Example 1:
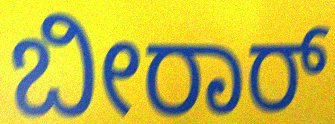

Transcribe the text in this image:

ಬೀರಾರ್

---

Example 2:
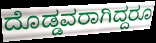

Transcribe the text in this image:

ದೊಡ್ಡವರಾಗಿದ್ದರೂ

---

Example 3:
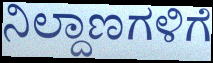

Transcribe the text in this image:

ನಿಲ್ದಾಣಗಳಿಗೆ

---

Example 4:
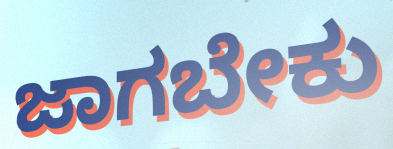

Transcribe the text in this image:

ಜಾಗಬೇಕು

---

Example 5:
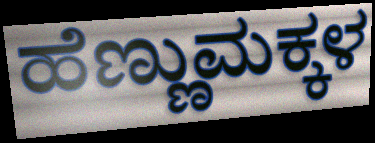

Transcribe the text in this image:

ಹೆಣ್ಣುಮಕ್ಕಳ